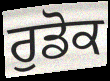
ਰੁਡੋਕ